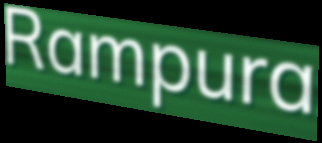
Rampura